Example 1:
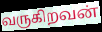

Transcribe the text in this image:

வருகிறவன்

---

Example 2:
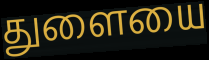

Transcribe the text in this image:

துளையை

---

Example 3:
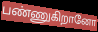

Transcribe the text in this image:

பண்ணுகிறானோ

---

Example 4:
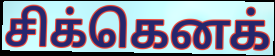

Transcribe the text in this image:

சிக்கெனக்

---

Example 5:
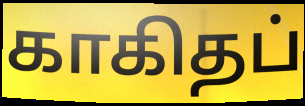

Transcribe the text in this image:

காகிதப்